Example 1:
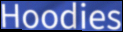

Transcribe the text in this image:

Hoodies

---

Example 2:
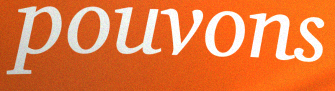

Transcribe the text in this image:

pouvons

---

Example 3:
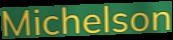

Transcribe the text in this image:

Michelson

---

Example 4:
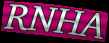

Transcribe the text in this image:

RNHA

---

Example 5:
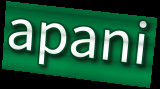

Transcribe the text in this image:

apani